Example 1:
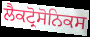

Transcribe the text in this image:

ਲੈਕਟ੍ਰੋਸੋਨਿਕਸ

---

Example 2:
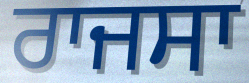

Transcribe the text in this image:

ਰਾਜਸਾ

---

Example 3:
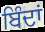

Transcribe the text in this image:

ਬਿੰਦਾਂ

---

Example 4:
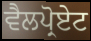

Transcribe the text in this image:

ਵੈਲਪ੍ਰੋਏਟ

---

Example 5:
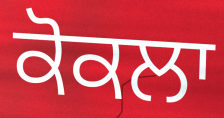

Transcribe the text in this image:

ਕੋਕਲਾ